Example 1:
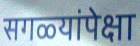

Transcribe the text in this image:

सगळ्यांपेक्षा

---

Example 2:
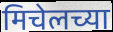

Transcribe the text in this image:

मिचेलच्या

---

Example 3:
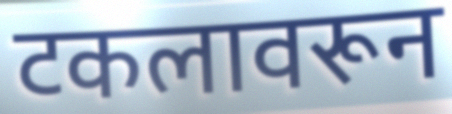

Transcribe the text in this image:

टकलावरून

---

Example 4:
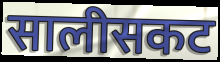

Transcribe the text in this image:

सालीसकट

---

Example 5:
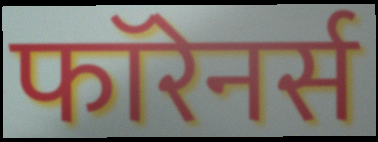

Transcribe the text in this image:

फॉरेनर्स